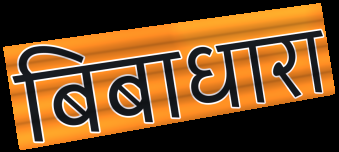
बिबाधारा